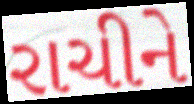
રાચીને